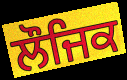
ਲੌਜਿਕ